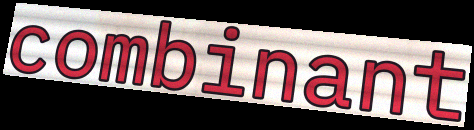
combinant